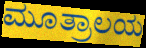
ಮೂತ್ರಾಲಯ